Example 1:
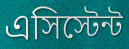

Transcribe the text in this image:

এসিস্টেন্ট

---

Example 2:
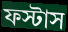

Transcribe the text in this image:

ফস্টাস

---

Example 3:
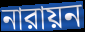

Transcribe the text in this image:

নারায়ন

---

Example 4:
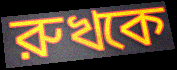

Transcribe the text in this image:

রুখকে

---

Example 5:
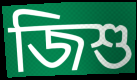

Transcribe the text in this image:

জিশু